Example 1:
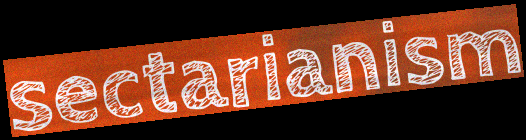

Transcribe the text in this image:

sectarianism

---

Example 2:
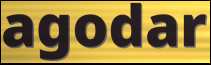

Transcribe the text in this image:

agodar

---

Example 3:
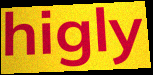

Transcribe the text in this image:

higly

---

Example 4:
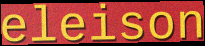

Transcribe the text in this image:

eleison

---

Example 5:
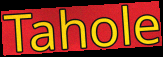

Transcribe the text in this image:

Tahole